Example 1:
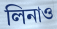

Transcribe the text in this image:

লিনাও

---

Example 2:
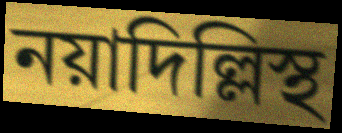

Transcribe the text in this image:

নয়াদিল্লিস্থ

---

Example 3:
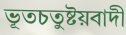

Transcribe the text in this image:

ভূতচতুষ্টয়বাদী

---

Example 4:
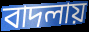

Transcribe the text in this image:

বাদলায়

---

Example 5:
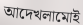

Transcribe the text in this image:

আদেখলামোই